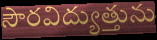
సౌరవిద్యుత్తును